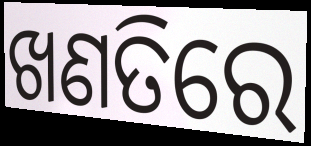
ଖଣତିରେ